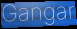
Gangar